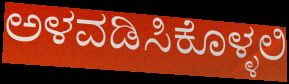
ಅಳವಡಿಸಿಕೊಳ್ಳಲಿ